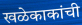
खळेकाकांची